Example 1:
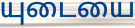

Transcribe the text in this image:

யுடையை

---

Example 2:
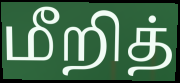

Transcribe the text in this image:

மீறித்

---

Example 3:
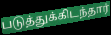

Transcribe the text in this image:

படுத்துக்கிடந்தார்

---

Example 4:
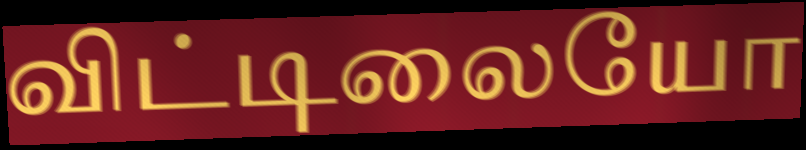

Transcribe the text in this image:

விட்டிலையோ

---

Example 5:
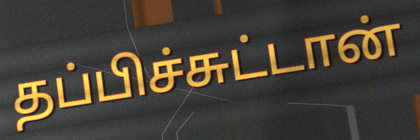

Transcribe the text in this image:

தப்பிச்சுட்டான்